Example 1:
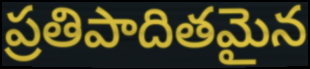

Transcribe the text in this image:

ప్రతిపాదితమైన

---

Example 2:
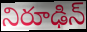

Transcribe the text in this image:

నిరూఢిన్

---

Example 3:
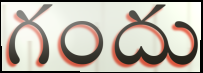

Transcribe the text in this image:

గందు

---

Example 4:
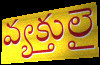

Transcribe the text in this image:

వ్యక్తులై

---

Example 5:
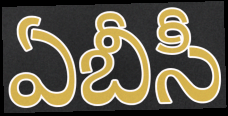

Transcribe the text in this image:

ఏబీసీ